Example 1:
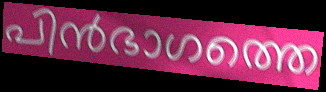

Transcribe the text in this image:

പിൻഭാഗത്തെ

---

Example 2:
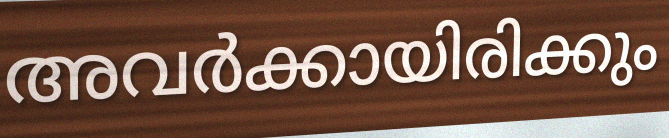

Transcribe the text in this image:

അവർക്കായിരിക്കും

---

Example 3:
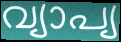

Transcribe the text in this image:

വ്യാപ്യ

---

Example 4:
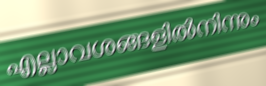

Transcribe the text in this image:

എല്ലാവശങ്ങളിൽനിന്നും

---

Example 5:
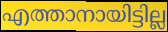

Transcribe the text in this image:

എത്താനായിട്ടില്ല